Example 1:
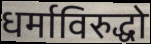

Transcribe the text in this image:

धर्माविरुद्धो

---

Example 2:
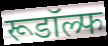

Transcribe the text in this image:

रूडॉल्फ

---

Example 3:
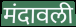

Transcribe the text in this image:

मंदावली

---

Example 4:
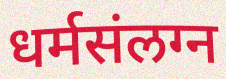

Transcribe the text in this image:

धर्मसंलग्न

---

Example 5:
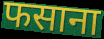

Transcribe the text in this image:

फसाना